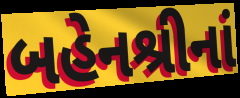
બહેનશ્રીનાં